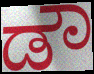
ಡೌ